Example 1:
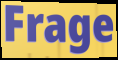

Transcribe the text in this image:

Frage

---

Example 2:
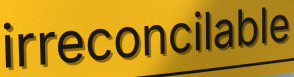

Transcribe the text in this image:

irreconcilable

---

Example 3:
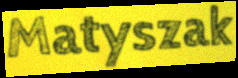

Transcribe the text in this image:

Matyszak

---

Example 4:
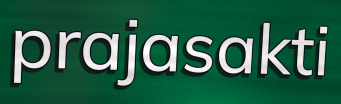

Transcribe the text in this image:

prajasakti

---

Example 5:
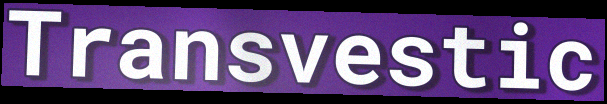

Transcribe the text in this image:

Transvestic